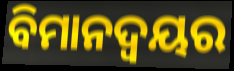
ବିମାନଦ୍ବୟର